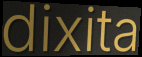
dixita